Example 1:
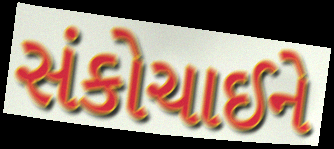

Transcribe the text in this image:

સંકોચાઈને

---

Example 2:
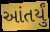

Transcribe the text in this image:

આંતર્યું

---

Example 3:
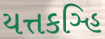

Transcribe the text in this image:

યત્તકઞ્હિ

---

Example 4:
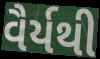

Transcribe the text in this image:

વૈર્યથી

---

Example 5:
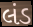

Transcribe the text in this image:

લંડ